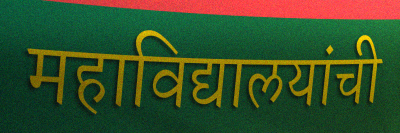
महाविद्यालयांची